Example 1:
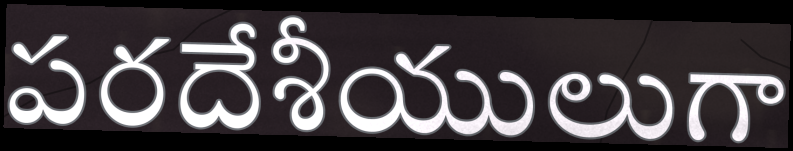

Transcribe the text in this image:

పరదేశీయులుగా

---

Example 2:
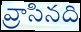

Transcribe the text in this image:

వ్రాసినది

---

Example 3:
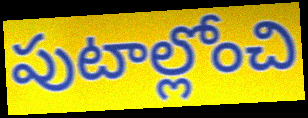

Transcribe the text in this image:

పుటాల్లోంచి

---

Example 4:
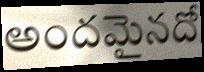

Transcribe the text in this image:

అందమైనదో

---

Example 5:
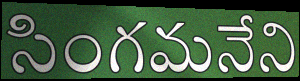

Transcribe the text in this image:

సింగమనేని